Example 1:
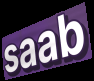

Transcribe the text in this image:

saab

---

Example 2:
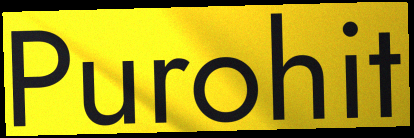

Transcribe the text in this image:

Purohit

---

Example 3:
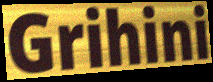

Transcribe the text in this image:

Grihini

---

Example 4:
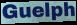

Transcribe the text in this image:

Guelph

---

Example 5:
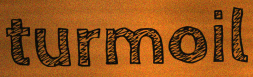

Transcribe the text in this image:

turmoil